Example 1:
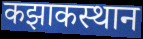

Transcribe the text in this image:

कझाकस्थान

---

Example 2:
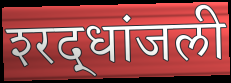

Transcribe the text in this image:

श्रद्धांजली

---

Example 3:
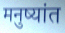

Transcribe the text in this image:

मनुष्यांत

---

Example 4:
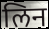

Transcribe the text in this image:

लिन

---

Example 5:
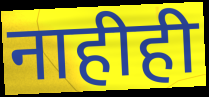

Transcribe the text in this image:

नाहीही